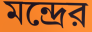
মন্দ্রের